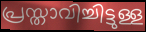
പ്രസ്താവിച്ചിട്ടുള്ള